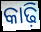
କାଢ଼ି